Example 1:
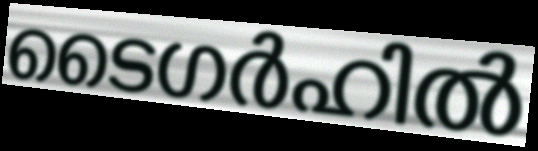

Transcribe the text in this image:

ടൈഗർഹിൽ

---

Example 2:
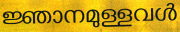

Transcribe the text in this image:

ജ്ഞാനമുള്ളവൾ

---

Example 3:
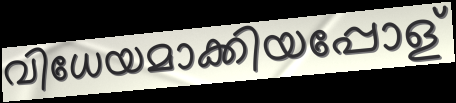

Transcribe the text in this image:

വിധേയമാക്കിയപ്പോള്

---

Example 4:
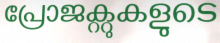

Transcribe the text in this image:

പ്രോജക്റ്റുകളുടെ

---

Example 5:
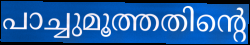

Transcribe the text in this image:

പാച്ചുമൂത്തതിന്റെ